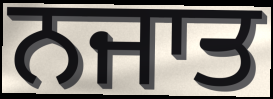
ਨਜਾਤ